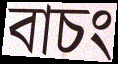
বাচং